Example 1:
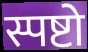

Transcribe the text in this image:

स्पष्टो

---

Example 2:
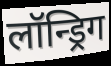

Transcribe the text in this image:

लॉन्ड्रिग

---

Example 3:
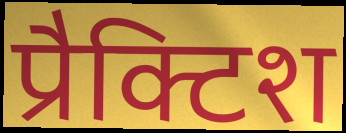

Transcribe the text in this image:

प्रैक्टिश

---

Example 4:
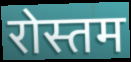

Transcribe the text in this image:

रोस्तम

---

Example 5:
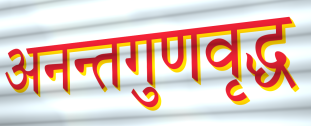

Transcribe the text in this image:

अनन्तगुणवृद्ध